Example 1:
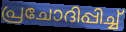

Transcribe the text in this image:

പ്രചോദിപ്പിച്ച്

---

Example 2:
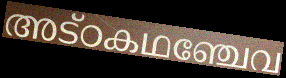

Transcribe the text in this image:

അട്ഠകഥഞ്ചേവ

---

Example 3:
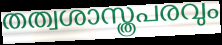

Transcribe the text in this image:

തത്വശാസ്ത്രപരവും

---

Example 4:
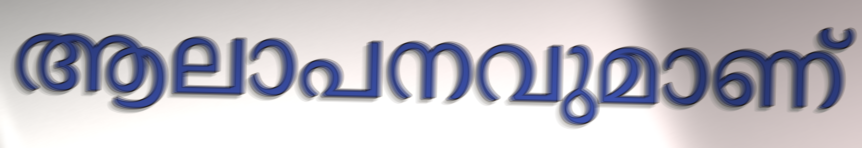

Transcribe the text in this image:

ആലാപനവുമാണ്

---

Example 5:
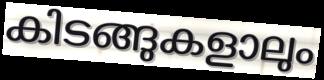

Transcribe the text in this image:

കിടങ്ങുകളാലും